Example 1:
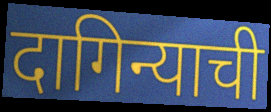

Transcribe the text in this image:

दागिन्याची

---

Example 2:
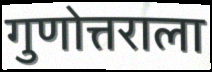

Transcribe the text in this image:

गुणोत्तराला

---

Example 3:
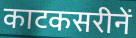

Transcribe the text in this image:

काटकसरीनें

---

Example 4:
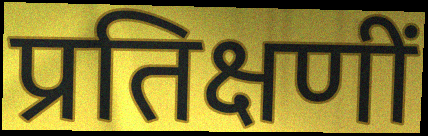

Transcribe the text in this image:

प्रतिक्षणीं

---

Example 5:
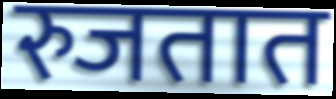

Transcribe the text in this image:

रुजतात